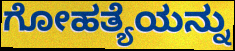
ಗೋಹತ್ಯೆಯನ್ನು